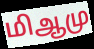
மிஆமு